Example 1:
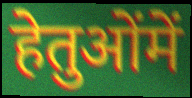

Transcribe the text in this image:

हेतुओंमें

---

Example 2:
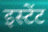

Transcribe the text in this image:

इस्टेंट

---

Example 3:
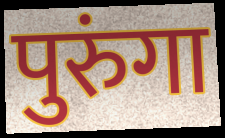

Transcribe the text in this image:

पुरुंगा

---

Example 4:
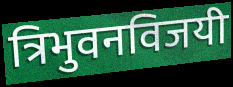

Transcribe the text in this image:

त्रिभुवनविजयी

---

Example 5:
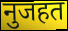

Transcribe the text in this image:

नुजहत